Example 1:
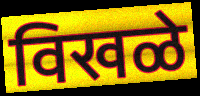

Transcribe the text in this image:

विखळे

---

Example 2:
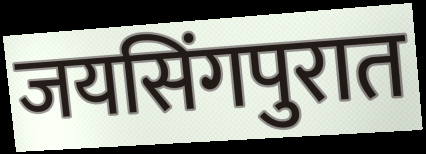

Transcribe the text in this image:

जयसिंगपुरात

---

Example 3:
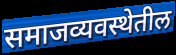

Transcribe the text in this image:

समाजव्यवस्थेतील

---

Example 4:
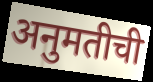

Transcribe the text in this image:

अनुमतीची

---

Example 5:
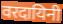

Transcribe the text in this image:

वरदायिनी